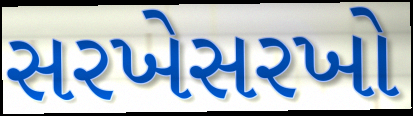
સરખેસરખો